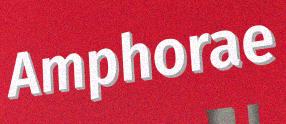
Amphorae